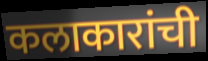
कलाकारांची